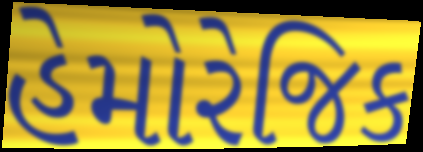
હેમોરેજિક